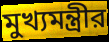
মুখ্যমন্ত্রীর